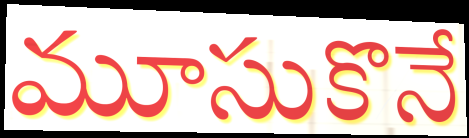
మూసుకొనే